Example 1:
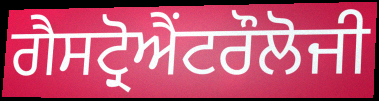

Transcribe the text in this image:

ਗੈਸਟ੍ਰੋਐਂਟਰੌਲੋਜੀ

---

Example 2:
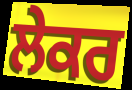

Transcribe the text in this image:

ਲੇਕਰ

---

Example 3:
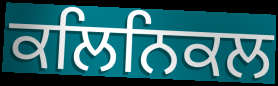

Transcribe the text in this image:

ਕਲਿਨਿਕਲ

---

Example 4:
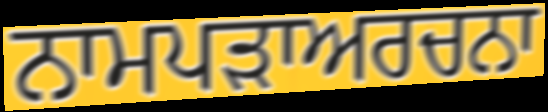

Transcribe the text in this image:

ਨਾਮਪੜਾਅਰਚਨਾ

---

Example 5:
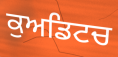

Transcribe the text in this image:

ਕੁਅਡਿਟਚ